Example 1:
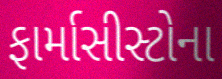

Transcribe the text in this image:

ફાર્માસીસ્ટોના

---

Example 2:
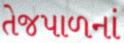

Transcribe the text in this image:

તેજપાળનાં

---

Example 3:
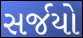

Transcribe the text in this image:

સર્જયો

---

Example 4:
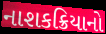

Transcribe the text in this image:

નાશકક્રિયાનો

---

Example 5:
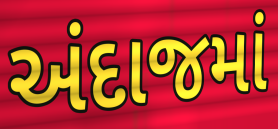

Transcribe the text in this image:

અંદાજમાં